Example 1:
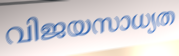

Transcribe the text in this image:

വിജയസാധ്യത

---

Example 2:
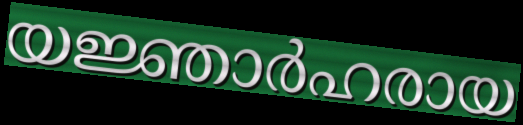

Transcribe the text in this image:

യജ്ഞാർഹരായ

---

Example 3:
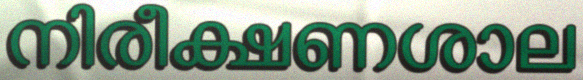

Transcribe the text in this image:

നിരീക്ഷണശാല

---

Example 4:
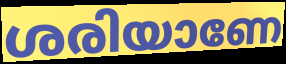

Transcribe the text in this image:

ശരിയാണേ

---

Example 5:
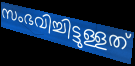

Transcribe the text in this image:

സംഭവിച്ചിട്ടുള്ളത്